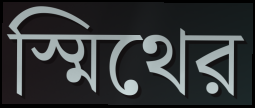
স্মিথের